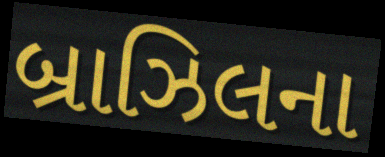
બ્રાઝિલના